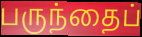
பருந்தைப்